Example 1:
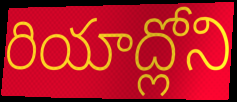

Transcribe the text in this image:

రియాద్లోని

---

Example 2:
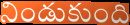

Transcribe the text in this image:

నిండుకుంది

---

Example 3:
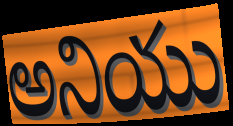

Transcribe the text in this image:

అనియు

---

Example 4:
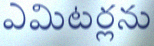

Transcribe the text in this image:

ఎమిటర్లను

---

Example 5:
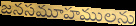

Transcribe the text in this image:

జనసమూహములను